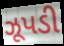
ઝૂપડી